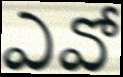
ఎవో